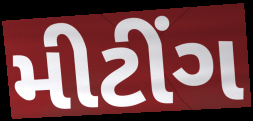
મીટીંગ